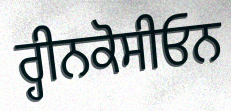
ਰ੍ਹੀਨਕੋਸੀਓਨ